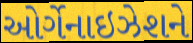
ઓર્ગેનાઇઝેશને